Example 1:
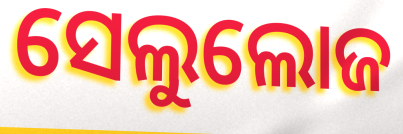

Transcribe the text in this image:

ସେଲୁଲୋଜ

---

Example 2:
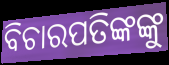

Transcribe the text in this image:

ବିଚାରପତିଙ୍କଙ୍କୁ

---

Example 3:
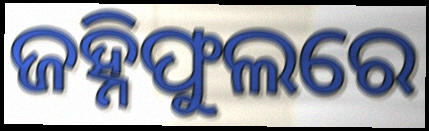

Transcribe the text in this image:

ଜହ୍ନିଫୁଲରେ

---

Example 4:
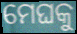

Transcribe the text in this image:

ମେଘକୁ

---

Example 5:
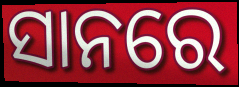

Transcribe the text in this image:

ସାନରେ